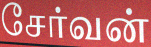
சேர்வன்